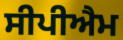
ਸੀਪੀਐਮ